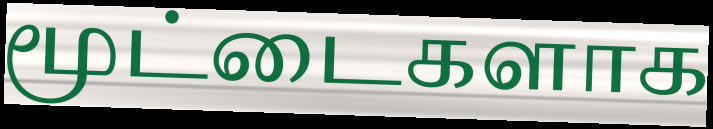
மூட்டைகளாக